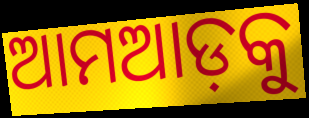
ଆମଆଡ଼କୁ